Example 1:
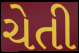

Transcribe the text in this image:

ચેતી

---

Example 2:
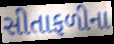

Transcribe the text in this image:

સીતાફળીના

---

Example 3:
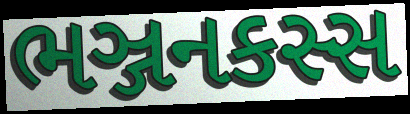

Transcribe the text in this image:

ભઞ્જનકસ્સ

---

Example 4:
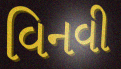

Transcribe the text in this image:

વિનવી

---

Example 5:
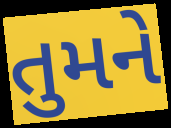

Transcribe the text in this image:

તુમને